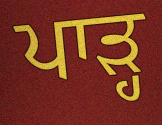
ਪਾੜ੍ਹ